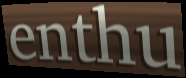
enthu